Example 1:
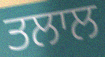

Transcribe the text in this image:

ਤਲਾਲ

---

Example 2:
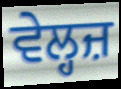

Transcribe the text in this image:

ਵੇਲ੍ਹਜ਼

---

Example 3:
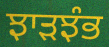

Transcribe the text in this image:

ਝਾੜਝੰਭ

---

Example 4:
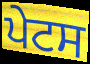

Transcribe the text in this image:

ਪੇਟਸ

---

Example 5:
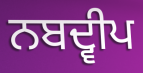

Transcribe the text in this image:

ਨਬਦ੍ਵੀਪ